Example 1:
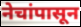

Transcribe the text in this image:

नेचांपासून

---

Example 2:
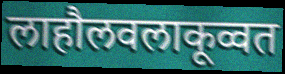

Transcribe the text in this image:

लाहौलवलाकूव्वत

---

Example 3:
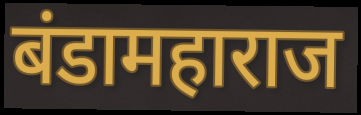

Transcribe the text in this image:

बंडामहाराज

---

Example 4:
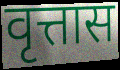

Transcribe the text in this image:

वृत्तास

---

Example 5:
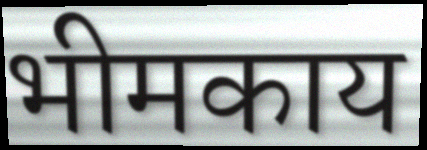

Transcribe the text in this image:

भीमकाय